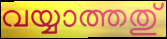
വയ്യാത്തതു്